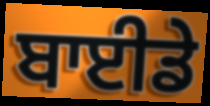
ਬਾਈਡੇ